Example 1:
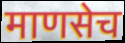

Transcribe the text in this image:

माणसेच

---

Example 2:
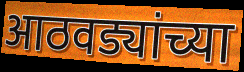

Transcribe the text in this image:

आठवड्यांच्या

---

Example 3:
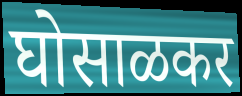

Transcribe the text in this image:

घोसाळकर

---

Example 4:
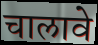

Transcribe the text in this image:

चालावे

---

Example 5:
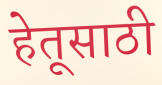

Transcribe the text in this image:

हेतूसाठी